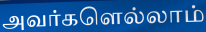
அவர்களெல்லாம்